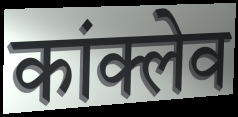
कांक्लेव